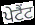
ਪੇਟੈਂਟ